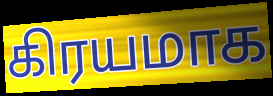
கிரயமாக